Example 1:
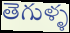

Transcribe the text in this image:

తెగుళ్ళ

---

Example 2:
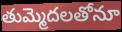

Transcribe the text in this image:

తుమ్మెదలతోనూ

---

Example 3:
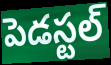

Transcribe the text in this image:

పెడస్టల్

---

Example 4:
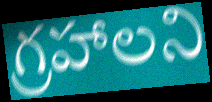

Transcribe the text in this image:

గ్రహాలని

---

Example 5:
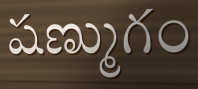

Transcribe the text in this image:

షణ్ముగం